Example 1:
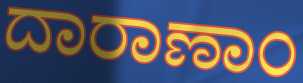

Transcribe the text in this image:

ದಾರಾಣಾಂ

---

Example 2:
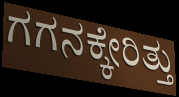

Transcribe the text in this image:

ಗಗನಕ್ಕೇರಿತ್ತು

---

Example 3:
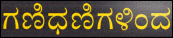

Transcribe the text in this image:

ಗಣಿಧಣಿಗಳಿಂದ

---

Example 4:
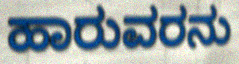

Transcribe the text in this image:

ಹಾರುವರನು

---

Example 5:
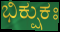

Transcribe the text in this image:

ಭಿಕ್ಷುಕಃ